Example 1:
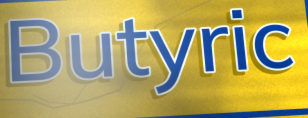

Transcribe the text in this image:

Butyric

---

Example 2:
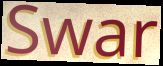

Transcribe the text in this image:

Swar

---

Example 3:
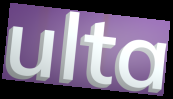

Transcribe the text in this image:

ulta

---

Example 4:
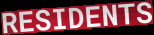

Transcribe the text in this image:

RESIDENTS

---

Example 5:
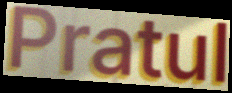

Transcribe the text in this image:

Pratul